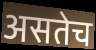
असतेच